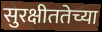
सुरक्षीततेच्या